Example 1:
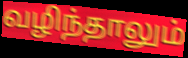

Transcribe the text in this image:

வழிந்தாலும்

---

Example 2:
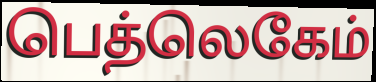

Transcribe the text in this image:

பெத்லெகேம்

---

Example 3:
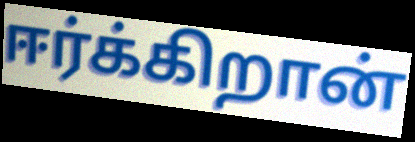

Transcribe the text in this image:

ஈர்க்கிறான்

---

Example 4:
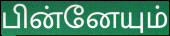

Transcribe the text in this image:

பின்னேயும்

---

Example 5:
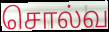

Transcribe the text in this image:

சொல்வ